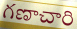
గణాచారి